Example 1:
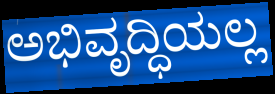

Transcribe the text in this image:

ಅಭಿವೃದ್ಧಿಯಲ್ಲ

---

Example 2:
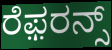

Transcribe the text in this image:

ರೆಫ಼ರನ್ಸ್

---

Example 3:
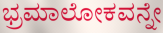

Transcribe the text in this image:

ಭ್ರಮಾಲೋಕವನ್ನೇ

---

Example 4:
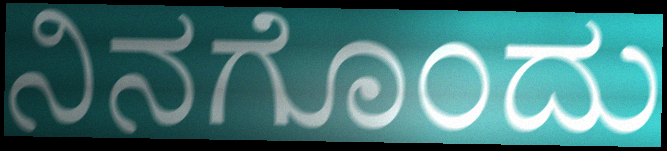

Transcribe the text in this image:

ನಿನಗೊಂದು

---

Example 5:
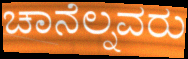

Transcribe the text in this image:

ಚಾನೆಲ್ನವರು